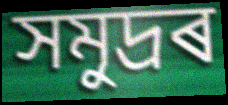
সমুদ্ৰৰ